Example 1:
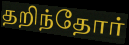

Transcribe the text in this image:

தறிந்தோர்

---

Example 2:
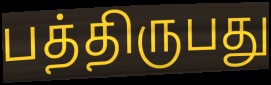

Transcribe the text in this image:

பத்திருபது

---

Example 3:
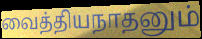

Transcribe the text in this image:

வைத்தியநாதனும்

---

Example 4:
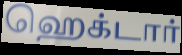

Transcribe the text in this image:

ஹெக்டார்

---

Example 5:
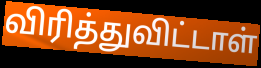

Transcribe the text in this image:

விரித்துவிட்டாள்